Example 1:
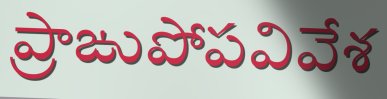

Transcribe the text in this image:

ప్రాఙుపోపవివేశ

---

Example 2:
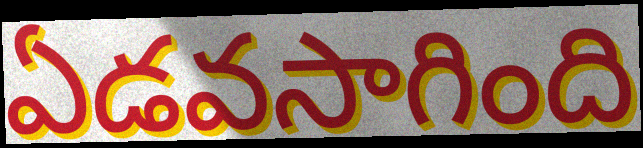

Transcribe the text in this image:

ఏడవసాగింది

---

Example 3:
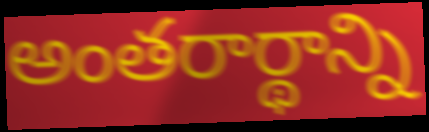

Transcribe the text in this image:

అంతరార్థాన్ని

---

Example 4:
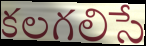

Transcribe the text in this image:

కలగలిసే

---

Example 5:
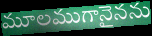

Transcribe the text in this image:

మూలముగానైనను